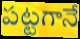
పట్టగానే